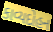
કાવ્યદોહન